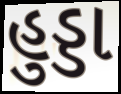
હુડ્ડા